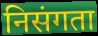
निसंगता